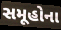
સમૂહોના